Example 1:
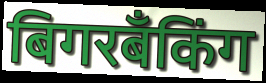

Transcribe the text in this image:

बिगरबँकिंग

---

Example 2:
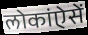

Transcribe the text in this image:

लोकांऐसें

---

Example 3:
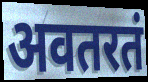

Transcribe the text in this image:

अवतरतं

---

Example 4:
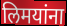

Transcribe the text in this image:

लिमयांना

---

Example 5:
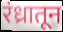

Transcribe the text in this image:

रंध्रातून